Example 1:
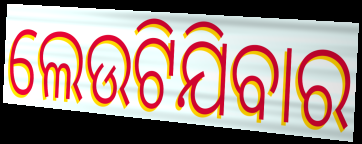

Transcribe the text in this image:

ଲେଉଟିଯିବାର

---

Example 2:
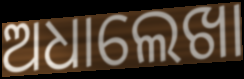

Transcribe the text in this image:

ଅଧାଲେଖା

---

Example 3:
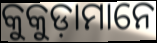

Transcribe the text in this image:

କୁକୁଡ଼ାମାନେ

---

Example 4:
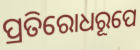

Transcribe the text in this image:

ପ୍ରତିରୋଧରୂପେ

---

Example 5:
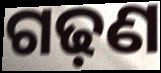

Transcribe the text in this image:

ଗଢ଼ଣ